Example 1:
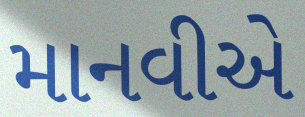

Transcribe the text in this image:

માનવીએ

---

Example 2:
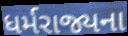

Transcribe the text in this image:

ધર્મરાજ્યના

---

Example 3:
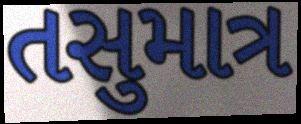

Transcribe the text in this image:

તસુમાત્ર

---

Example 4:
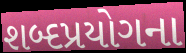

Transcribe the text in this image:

શબ્દપ્રયોગના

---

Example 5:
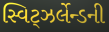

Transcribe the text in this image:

સ્વિટ્ઝર્લેન્ડની